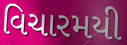
વિચારમયી